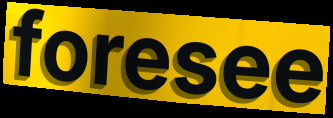
foresee